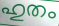
ഹുതം